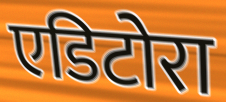
एडिटोरा